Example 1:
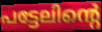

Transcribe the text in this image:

പട്ടേലിന്റെ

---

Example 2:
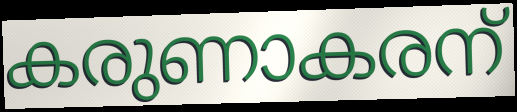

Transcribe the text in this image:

കരുണാകരന്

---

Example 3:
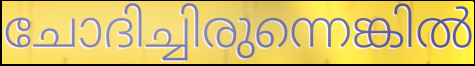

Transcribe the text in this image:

ചോദിച്ചിരുന്നെങ്കിൽ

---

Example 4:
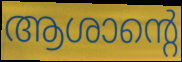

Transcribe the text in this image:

ആശാന്റെ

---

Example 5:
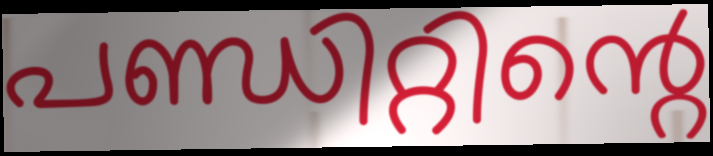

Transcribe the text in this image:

പണ്ഡിറ്റിന്റെ